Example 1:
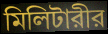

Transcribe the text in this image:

মিলিটারীর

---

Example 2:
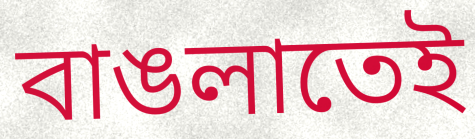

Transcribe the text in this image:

বাঙলাতেই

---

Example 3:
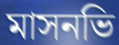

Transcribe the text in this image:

মাসনভি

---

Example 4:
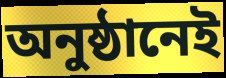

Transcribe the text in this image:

অনুষ্ঠানেই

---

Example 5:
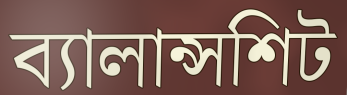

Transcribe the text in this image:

ব্যালান্সশিট